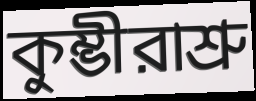
কুম্ভীরাশ্রু